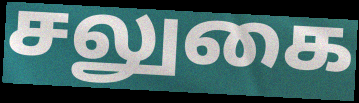
சலுகை